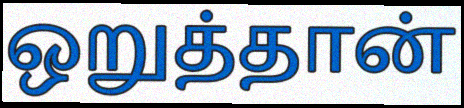
ஒறுத்தான்